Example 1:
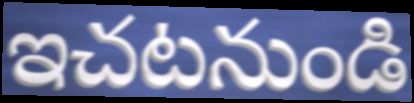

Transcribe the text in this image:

ఇచటనుండి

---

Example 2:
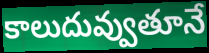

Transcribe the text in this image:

కాలుదువ్వుతూనే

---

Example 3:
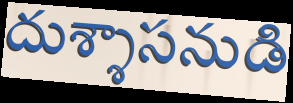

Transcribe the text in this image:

దుశ్శాసనుడి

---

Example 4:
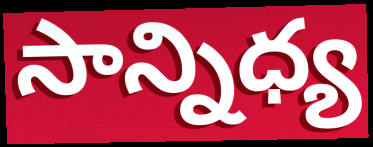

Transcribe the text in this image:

సాన్నిధ్య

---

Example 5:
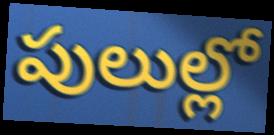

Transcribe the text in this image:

పులుల్లో